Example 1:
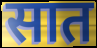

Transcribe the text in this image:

सात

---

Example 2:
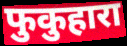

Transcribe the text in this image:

फुकुहारा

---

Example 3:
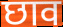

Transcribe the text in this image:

छाव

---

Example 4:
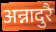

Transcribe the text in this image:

अन्नादुरै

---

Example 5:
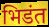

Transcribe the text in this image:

भिडंत